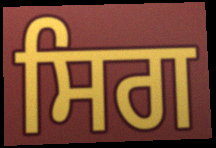
ਸਿਗ